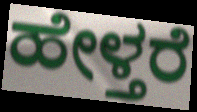
ಹೇಳ್ತರೆ